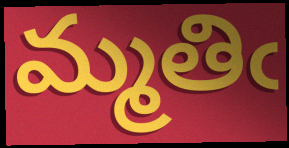
మ్మతిఁ